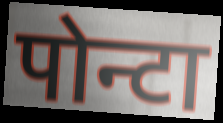
पोन्टा